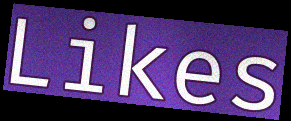
Likes